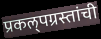
प्रकल्पग्रस्तांची